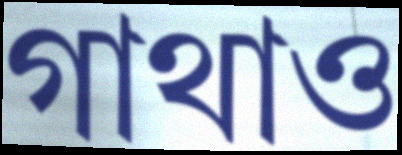
গাথাও